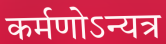
कर्मणोऽन्यत्र